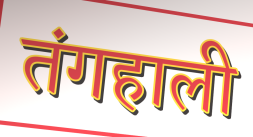
तंगहाली